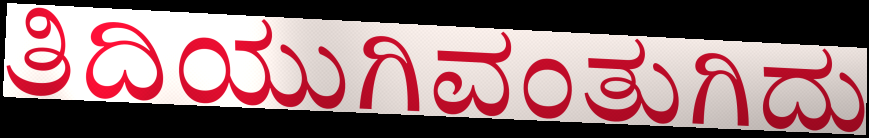
ತಿದಿಯುಗಿವಂತುಗಿದು